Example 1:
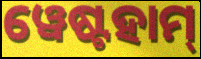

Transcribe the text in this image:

ୱେଷ୍ଟହାମ୍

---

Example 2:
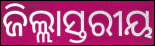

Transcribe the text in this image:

ଜିଲ୍ଲାସ୍ତରୀୟ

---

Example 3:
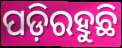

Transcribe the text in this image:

ପଡ଼ିରହୁଛି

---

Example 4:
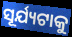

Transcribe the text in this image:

ସୂର୍ଯ୍ୟଟାକୁ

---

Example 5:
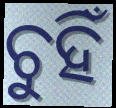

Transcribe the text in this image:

ଚୁହିଁ